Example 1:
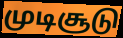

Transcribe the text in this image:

முடிசூடு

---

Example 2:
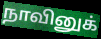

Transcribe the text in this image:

நாவினுக்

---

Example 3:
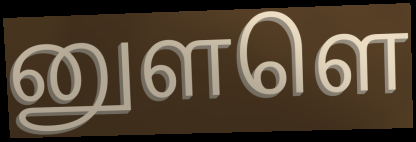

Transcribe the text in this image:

னுளளெ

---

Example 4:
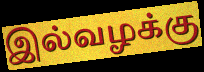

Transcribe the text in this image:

இல்வழக்கு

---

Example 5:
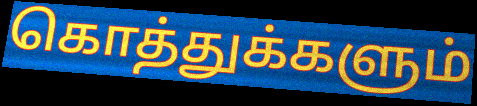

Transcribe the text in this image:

கொத்துக்களும்